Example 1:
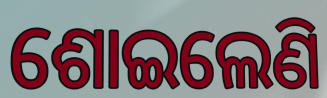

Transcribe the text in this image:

ଶୋଇଲେଣି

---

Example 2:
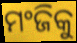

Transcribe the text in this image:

ମଂଜିକୁ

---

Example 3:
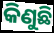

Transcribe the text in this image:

କିଣୁଛି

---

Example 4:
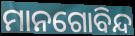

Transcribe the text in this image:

ମାନଗୋବିନ୍ଦ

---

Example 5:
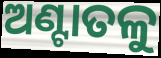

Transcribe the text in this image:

ଅଣ୍ଟାତଳୁ